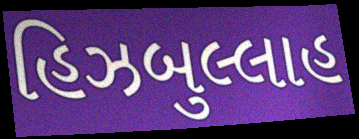
હિઝબુલ્લાહ